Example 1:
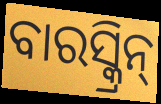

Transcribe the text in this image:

ବାରସ୍କ୍ରିନ୍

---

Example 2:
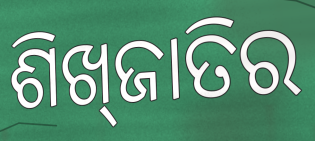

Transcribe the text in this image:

ଶିଖ୍‌ଜାତିର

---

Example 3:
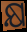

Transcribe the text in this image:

କ୍ଷ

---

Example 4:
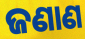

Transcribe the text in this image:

ଜଣାଣ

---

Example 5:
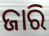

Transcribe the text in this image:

ଜାରି